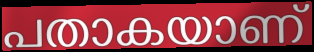
പതാകയാണ്